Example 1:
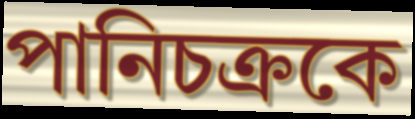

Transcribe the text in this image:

পানিচক্রকে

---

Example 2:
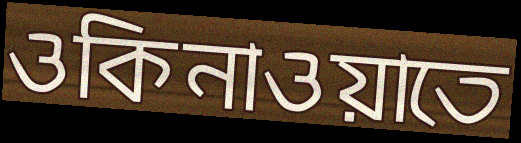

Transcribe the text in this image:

ওকিনাওয়াতে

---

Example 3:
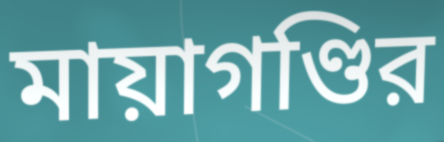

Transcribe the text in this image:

মায়াগণ্ডির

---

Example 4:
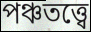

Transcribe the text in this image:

পঞ্চতত্ত্বে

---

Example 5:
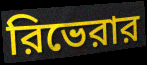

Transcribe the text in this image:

রিভেরার